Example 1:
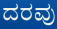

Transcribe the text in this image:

ದರವು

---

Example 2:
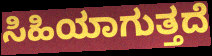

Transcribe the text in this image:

ಸಿಹಿಯಾಗುತ್ತದೆ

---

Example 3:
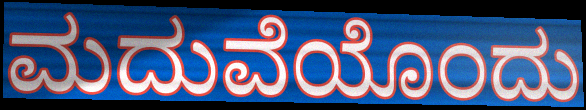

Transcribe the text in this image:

ಮದುವೆಯೊಂದು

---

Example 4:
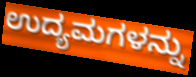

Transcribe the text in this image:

ಉದ್ಯಮಗಳನ್ನು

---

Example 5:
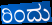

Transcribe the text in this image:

ರಿಂದು